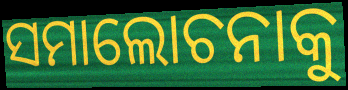
ସମାଲୋଚନାକୁ